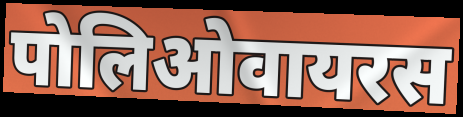
पोलिओवायरस